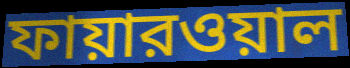
ফায়ারওয়াল